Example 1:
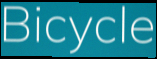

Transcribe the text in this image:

Bicycle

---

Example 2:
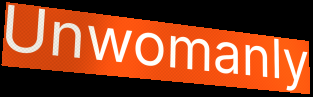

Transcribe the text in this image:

Unwomanly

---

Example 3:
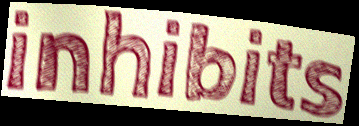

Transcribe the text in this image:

inhibits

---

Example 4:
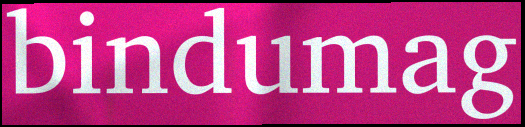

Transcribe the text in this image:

bindumag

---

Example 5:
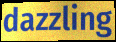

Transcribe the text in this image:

dazzling